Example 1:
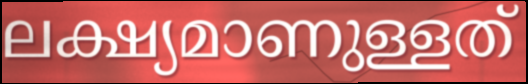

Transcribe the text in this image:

ലക്ഷ്യമാണുള്ളത്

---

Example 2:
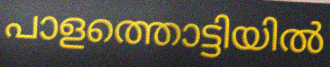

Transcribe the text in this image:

പാളത്തൊട്ടിയിൽ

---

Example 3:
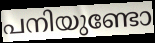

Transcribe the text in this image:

പനിയുണ്ടോ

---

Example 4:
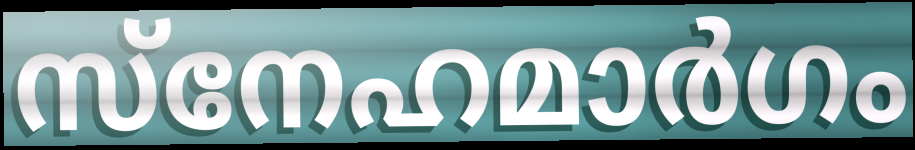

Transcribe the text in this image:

സ്നേഹമാർഗം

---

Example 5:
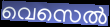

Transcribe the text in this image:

വെസെൽ